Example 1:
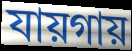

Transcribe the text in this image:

যায়গায়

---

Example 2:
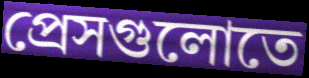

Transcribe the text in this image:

প্রেসগুলোতে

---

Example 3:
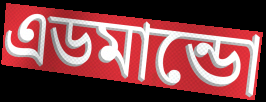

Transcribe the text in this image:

এডমান্ডো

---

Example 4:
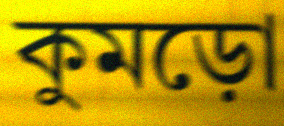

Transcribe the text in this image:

কুমড়ো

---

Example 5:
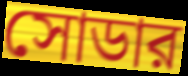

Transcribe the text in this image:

সোডার